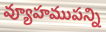
వ్యూహముపన్ని